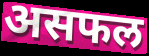
असफल